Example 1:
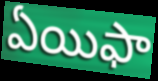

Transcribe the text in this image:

ఏయిఫా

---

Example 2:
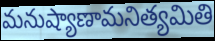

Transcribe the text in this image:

మనుష్యాణామనిత్యమితి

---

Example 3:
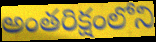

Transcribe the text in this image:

అంతరిక్షంలోని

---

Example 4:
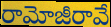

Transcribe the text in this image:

రామోజీరావే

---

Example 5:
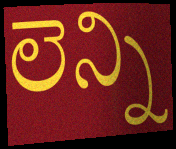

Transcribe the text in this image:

లెన్ని